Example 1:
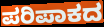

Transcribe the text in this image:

ಪರಿಪಾಕದ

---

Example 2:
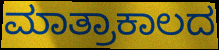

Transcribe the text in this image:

ಮಾತ್ರಾಕಾಲದ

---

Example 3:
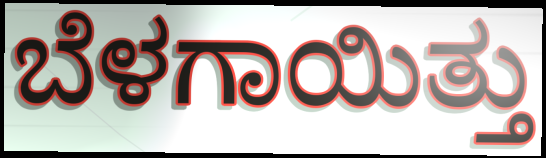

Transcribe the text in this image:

ಬೆಳಗಾಯಿತ್ತು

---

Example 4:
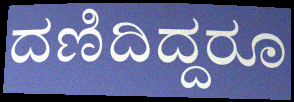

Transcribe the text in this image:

ದಣಿದಿದ್ದರೂ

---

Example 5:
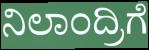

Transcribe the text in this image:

ನಿಲಾಂದ್ರಿಗೆ